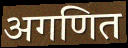
अगणित